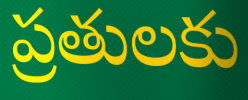
ప్రతులకు